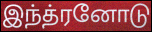
இந்த்ரனோடு